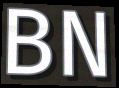
BN